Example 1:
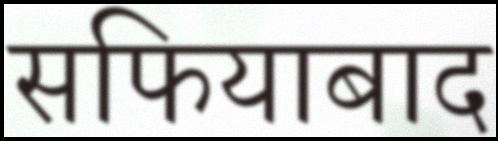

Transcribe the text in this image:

सफियाबाद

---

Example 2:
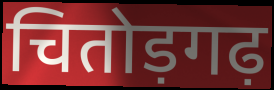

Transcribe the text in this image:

चितोड़गढ़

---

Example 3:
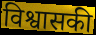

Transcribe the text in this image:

विश्वासकी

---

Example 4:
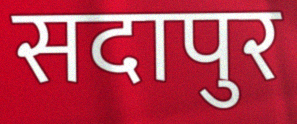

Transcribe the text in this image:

सदापुर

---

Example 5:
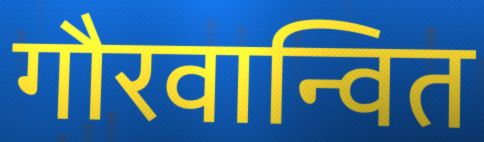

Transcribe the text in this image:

गौरवान्वित